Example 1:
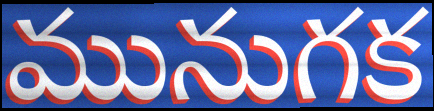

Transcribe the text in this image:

మునుగక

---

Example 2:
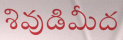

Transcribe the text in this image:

శివుడిమీద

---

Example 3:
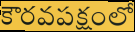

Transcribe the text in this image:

కౌరవపక్షంలో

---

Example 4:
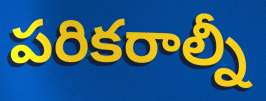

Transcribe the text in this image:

పరికరాల్నీ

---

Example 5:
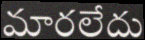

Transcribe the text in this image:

మారలేదు